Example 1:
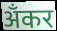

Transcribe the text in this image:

अँकर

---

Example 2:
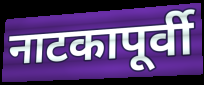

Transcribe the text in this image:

नाटकापूर्वी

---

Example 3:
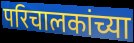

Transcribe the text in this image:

परिचालकांच्या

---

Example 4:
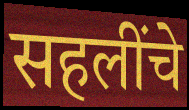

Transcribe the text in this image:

सहलींचे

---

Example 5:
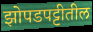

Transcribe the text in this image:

झोपडपट्टीतील